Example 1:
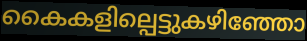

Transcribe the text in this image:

കൈകളില്പെട്ടുകഴിഞ്ഞോ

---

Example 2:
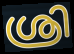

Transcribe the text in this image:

ശ്രി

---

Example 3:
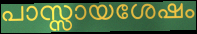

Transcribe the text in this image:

പാസ്സായശേഷം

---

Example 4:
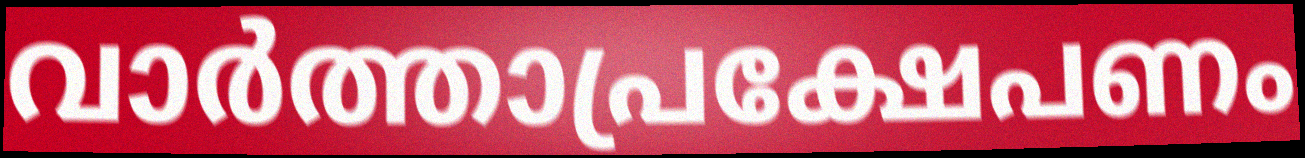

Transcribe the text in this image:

വാർത്താപ്രക്ഷേപണം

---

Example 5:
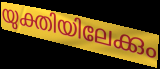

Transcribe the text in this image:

യുക്തിയിലേക്കും